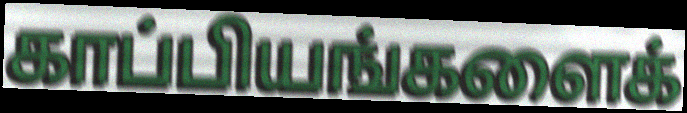
காப்பியங்களைக்